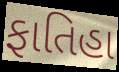
ફાતિહા